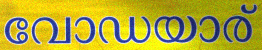
വോഡയാര്